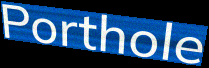
Porthole